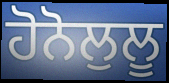
ਹੋਨੋਲੁਲੂ